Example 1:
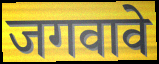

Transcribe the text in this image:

जगवावे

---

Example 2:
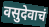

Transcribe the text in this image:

वसुदेवाचं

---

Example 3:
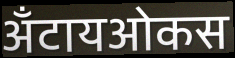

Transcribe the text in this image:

अँटायओकस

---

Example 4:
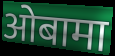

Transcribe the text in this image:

ओबामा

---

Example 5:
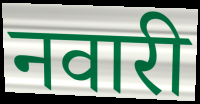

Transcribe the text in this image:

नवारी